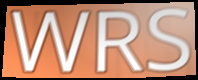
WRS